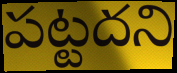
పట్టదని